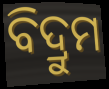
ବିଦ୍ରୁମ